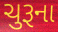
ચુરૂના